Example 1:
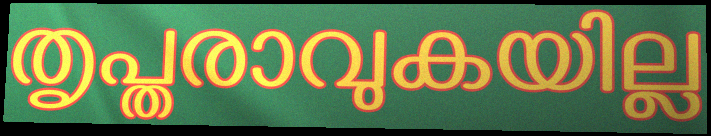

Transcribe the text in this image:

തൃപ്തരാവുകയില്ല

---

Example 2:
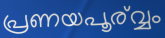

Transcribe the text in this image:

പ്രണയപൂര്വ്വം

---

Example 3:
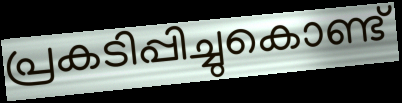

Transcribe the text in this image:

പ്രകടിപ്പിച്ചുകൊണ്ട്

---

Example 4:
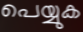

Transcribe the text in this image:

പെയ്യുക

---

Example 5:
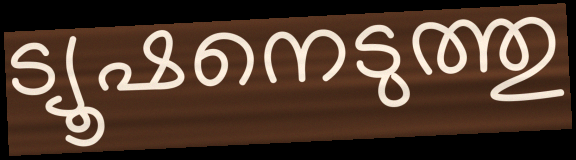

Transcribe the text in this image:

ട്യൂഷനെടുത്തു